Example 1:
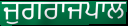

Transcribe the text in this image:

ਜੁਗਰਾਜਪਾਲ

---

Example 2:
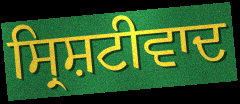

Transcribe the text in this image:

ਸ੍ਰਿਸ਼ਟੀਵਾਦ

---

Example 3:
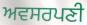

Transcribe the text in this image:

ਅਵਸਰਪਣੀ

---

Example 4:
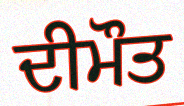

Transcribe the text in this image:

ਦੀਮੌਤ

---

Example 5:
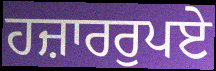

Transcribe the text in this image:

ਹਜ਼ਾਰਰੁਪਏ